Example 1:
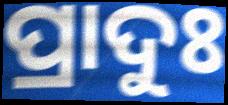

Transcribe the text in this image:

ପ୍ରାଦୁଃ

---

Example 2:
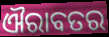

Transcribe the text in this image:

ଐରାବତର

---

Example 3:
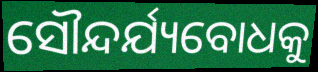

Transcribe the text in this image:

ସୌନ୍ଦର୍ଯ୍ୟବୋଧକୁ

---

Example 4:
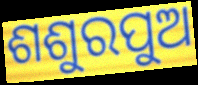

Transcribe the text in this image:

ଶଶୁରପୁଅ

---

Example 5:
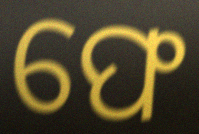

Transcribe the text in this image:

ଫେ